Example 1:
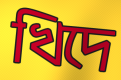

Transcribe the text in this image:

খিদে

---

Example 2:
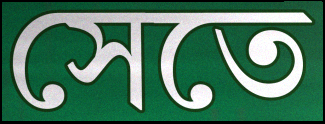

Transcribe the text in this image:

সেতে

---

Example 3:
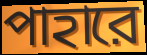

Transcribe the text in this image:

পাহারে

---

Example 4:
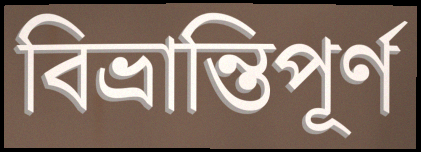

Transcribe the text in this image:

বিভ্রান্তিপূর্ণ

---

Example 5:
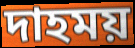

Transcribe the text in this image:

দাহময়